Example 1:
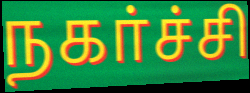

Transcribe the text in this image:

நகர்ச்சி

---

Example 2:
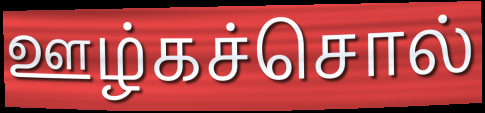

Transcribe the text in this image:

ஊழ்கச்சொல்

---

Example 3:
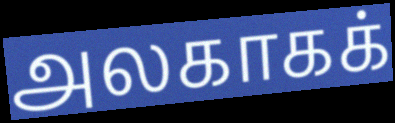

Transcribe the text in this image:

அலகாகக்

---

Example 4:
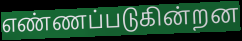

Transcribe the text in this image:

எண்ணப்படுகின்றன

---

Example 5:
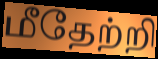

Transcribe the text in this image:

மீதேற்றி